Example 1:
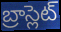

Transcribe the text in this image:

బ్రాస్లెట్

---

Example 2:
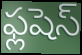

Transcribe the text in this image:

ఫ్లషెస్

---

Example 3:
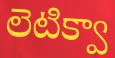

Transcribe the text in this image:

లెటిక్వా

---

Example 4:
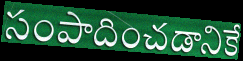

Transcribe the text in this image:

సంపాదించడానికే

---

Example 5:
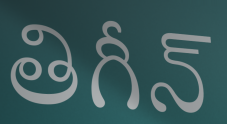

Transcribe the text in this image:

తిగీన్